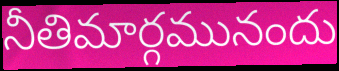
నీతిమార్గమునందు